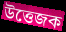
উত্তেজক